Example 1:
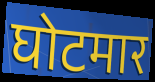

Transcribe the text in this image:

घोटमार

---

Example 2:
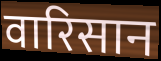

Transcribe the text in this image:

वारिसान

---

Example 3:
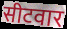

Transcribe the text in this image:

सीटवार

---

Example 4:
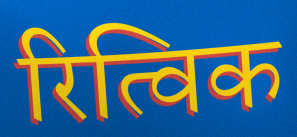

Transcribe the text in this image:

रित्विक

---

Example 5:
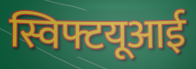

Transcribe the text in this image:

स्विफ्टयूआई